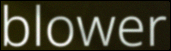
blower